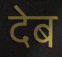
देब